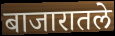
बाजारातले